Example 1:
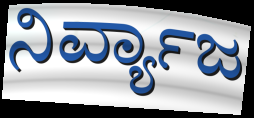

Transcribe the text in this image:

ನಿರ್ವ್ಯಾಜ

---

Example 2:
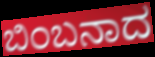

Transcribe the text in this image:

ಬಿಂಬನಾದ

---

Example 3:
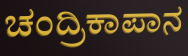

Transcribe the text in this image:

ಚಂದ್ರಿಕಾಪಾನ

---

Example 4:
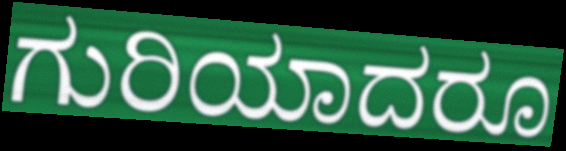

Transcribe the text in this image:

ಗುರಿಯಾದರೂ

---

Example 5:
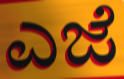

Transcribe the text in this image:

ಎಜೆ